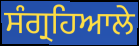
ਸੰਗ੍ਰਹਿਆਲੇ